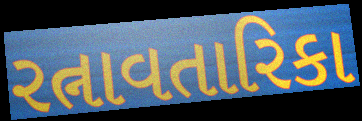
રત્નાવતારિકા